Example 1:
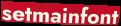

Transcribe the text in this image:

setmainfont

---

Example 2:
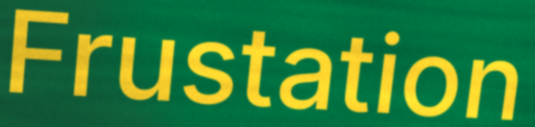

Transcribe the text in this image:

Frustation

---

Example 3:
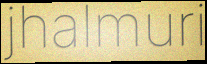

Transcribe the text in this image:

jhalmuri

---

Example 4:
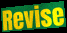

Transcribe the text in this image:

Revise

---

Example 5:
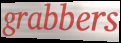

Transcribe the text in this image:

grabbers